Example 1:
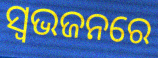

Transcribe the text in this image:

ସ୍ଵଭଜନରେ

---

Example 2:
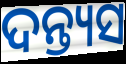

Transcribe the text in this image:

ଦନ୍ତ୍ୟସ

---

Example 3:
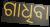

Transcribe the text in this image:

ଗାଧିବା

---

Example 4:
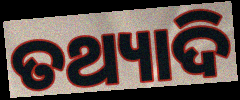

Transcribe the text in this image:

ତଥ୍ୟାଦି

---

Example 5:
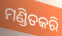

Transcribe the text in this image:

ମଣ୍ଡିତକରି